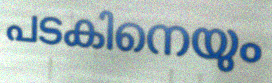
പടകിനെയും